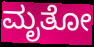
ಮೃತೋ